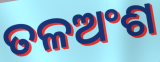
ତଳଅଂଶ